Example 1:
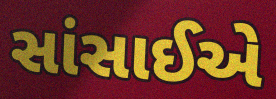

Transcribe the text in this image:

સાંસાઈએ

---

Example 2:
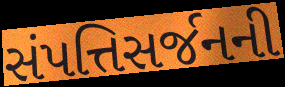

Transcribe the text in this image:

સંપત્તિસર્જનની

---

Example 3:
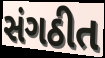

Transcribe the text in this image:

સંગઠીત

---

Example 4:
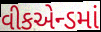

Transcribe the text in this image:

વીકએન્ડમાં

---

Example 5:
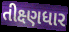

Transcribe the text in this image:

તીક્ષ્ણધાર